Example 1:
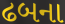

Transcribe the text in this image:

ઢબના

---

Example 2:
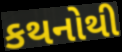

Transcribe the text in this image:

કથનોથી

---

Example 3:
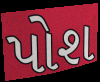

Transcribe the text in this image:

પોશ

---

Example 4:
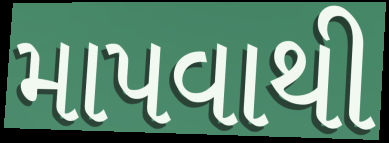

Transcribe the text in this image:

માપવાથી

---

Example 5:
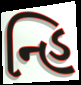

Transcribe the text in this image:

ન્હિ